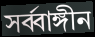
সর্ব্বাঙ্গীন